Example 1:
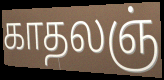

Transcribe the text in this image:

காதலஞ்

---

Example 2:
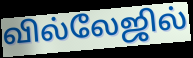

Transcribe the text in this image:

வில்லேஜில்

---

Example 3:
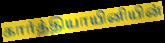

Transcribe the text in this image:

கார்த்தியாயினியின்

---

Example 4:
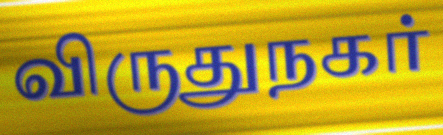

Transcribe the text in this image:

விருதுநகர்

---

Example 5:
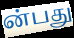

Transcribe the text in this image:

ன்பது